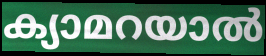
ക്യാമറയാൽ